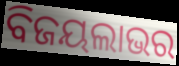
ବିଜୟଲାଭର